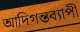
আদিগন্তব্যাপী